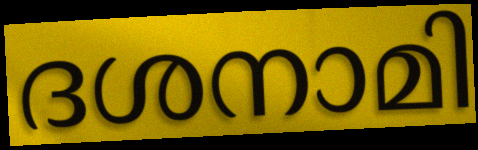
ദശനാമി